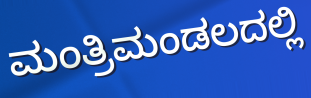
ಮಂತ್ರಿಮಂಡಲದಲ್ಲಿ